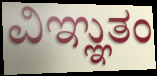
ವಿಞ್ಞುತಂ